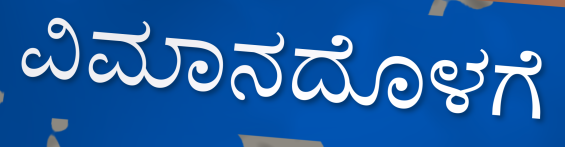
ವಿಮಾನದೊಳಗೆ